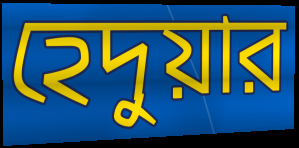
হেদুয়ার